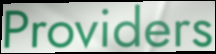
Providers